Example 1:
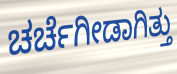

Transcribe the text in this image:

ಚರ್ಚೆಗೀಡಾಗಿತ್ತು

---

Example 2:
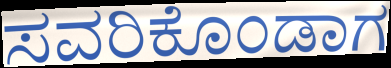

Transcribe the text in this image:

ಸವರಿಕೊಂಡಾಗ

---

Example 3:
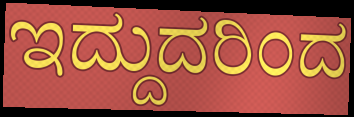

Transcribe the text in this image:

ಇದ್ದುದರಿಂದ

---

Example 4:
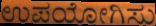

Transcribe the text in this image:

ಉಪಯೋಗಿಸು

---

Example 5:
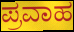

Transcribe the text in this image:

ಪ್ರವಾಹ